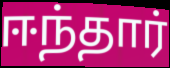
ஈந்தார்